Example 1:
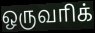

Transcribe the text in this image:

ஒருவரிக்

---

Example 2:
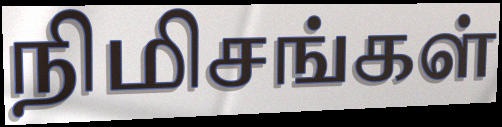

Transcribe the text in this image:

நிமிசங்கள்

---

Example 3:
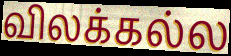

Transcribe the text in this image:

விலக்கல்ல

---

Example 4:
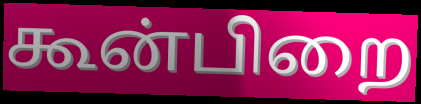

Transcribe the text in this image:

கூன்பிறை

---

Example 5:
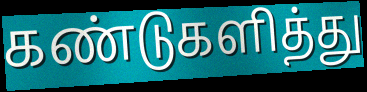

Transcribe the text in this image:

கண்டுகளித்து